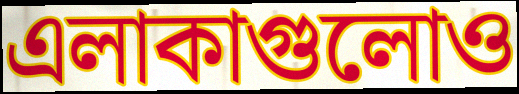
এলাকাগুলোও